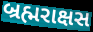
બ્રહ્મરાક્ષસ